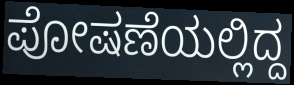
ಪೋಷಣೆಯಲ್ಲಿದ್ದ